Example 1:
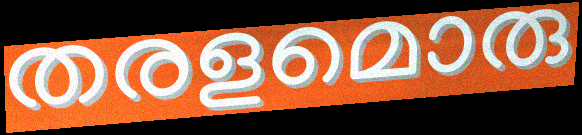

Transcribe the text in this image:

തരളമൊരു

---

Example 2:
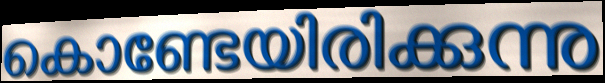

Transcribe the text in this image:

കൊണ്ടേയിരിക്കുന്നു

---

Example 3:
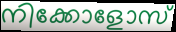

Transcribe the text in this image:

നിക്കോളോസ്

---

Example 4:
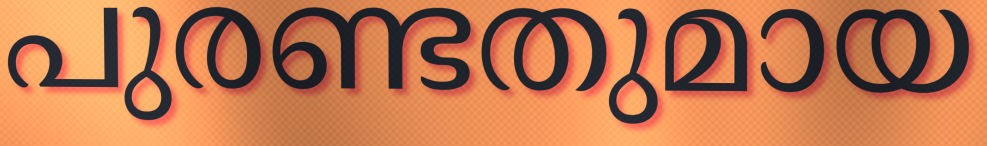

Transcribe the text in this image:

പുരണ്ടതുമായ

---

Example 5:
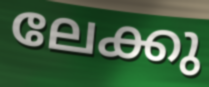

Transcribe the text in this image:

ലേക്കു